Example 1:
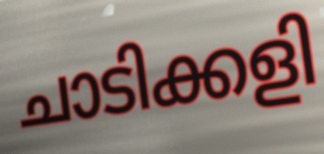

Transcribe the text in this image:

ചാടിക്കളി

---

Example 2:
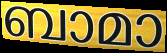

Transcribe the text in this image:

ബാമാ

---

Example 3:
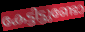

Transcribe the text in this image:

കേട്ടിട്ടുണ്ടോ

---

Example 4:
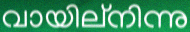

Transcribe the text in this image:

വായില്നിന്നു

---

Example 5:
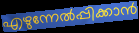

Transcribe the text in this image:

എഴുന്നേൽപ്പിക്കാൻ